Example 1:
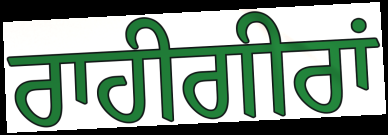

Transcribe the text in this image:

ਰਾਹੀਗੀਰਾਂ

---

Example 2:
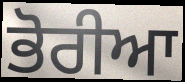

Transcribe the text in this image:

ਭੋਰੀਆ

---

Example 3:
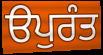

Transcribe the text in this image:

ੳਪੁਰੰਤ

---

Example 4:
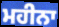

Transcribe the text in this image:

ਮਹੀਨਾ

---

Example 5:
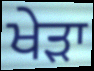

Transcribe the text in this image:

ਖੇੜਾ